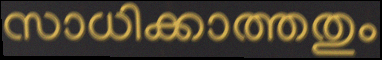
സാധിക്കാത്തതും